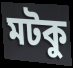
মটকু